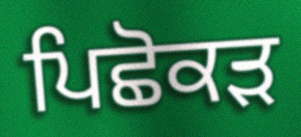
ਪਿਛੋਕੜ